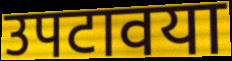
उपटावया